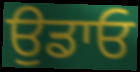
ਉਡਾਓ